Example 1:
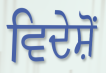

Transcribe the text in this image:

ਵਿਦੇਸ਼ੋਂ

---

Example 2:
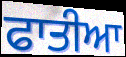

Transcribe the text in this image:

ਫਾਤੀਆ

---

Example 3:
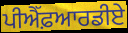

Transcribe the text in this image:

ਪੀਐੱਫ਼ਆਰਡੀਏ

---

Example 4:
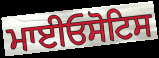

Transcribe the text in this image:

ਮਾਈਓਸੋਟਿਸ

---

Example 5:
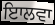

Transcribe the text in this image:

ਇਾਲਵਾ